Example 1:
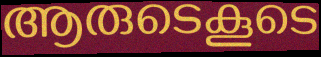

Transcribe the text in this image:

ആരുടെകൂടെ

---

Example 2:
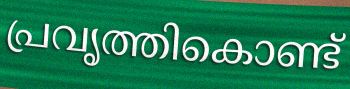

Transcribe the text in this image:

പ്രവൃത്തികൊണ്ട്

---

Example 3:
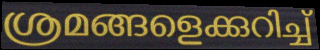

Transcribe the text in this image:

ശ്രമങ്ങളെക്കുറിച്ച്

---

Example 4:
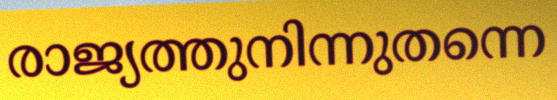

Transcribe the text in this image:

രാജ്യത്തുനിന്നുതന്നെ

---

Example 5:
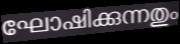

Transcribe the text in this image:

ഘോഷിക്കുന്നതും